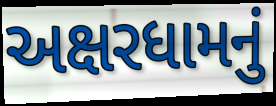
અક્ષરધામનું